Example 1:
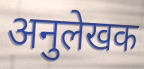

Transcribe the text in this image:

अनुलेखक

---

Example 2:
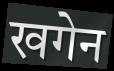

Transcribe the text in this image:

खगेन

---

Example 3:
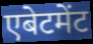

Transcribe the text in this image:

एबेटमेंट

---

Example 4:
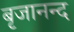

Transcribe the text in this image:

बृजानन्द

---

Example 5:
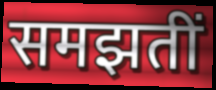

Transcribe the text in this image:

समझतीं